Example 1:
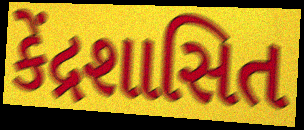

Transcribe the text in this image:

કેંદ્રશાસિત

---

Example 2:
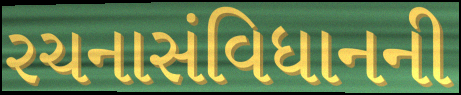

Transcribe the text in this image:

રચનાસંવિધાનની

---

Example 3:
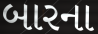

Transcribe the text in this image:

બારના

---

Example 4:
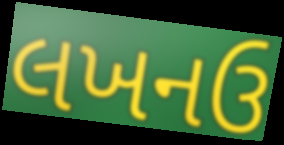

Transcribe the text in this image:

લખનઉ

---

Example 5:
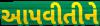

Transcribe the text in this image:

આપવીતીને